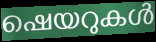
ഷെയറുകൾ